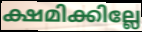
ക്ഷമിക്കില്ലേ